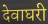
देवाघरी